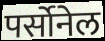
पर्सोनेल